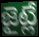
జైట్లే